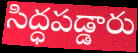
సిద్ధపడ్డారు